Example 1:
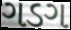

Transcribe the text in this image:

ગડગ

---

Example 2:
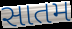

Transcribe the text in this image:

સાતમ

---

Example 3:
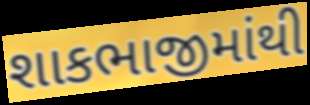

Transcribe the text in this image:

શાકભાજીમાંથી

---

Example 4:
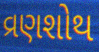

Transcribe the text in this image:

વ્રણશોથ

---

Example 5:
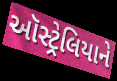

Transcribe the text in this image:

ઑસ્ટ્રેલિયાને